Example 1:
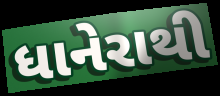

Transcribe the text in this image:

ધાનેરાથી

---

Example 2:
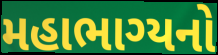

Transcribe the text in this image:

મહાભાગ્યનો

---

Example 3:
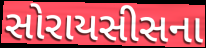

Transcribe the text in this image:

સોરાયસીસના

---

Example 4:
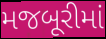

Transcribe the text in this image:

મજબૂરીમાં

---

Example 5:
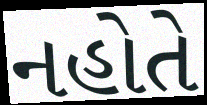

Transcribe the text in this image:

નહોતે